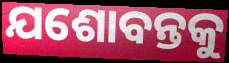
ଯଶୋବନ୍ତକୁ